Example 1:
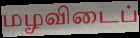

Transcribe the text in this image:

மழவிடைப்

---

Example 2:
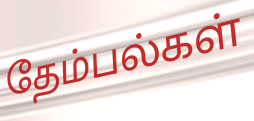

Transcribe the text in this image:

தேம்பல்கள்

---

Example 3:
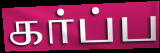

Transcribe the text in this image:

கர்ப்ப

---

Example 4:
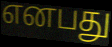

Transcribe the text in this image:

எனபது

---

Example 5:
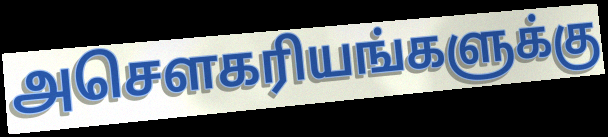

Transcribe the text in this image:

அசௌகரியங்களுக்கு